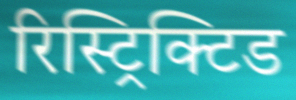
रिस्ट्रिक्टिड